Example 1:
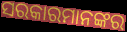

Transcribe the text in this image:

ସରକାରମାନଙ୍କର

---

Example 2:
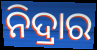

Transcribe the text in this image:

ନିଦ୍ରାର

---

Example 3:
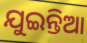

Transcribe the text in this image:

ଯୁଇନ୍ତିଆ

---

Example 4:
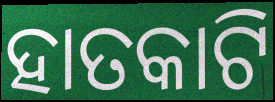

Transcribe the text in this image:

ହାତକାଟି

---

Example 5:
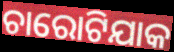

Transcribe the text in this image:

ଚାରୋଟିଯାକ